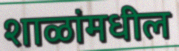
शाळांमधील